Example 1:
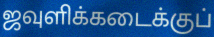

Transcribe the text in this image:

ஜவுளிக்கடைக்குப்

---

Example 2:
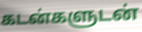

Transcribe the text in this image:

கடன்களுடன்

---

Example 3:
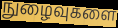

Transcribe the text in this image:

நுழைவுகளை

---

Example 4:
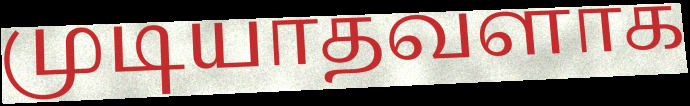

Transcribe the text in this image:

முடியாதவளாக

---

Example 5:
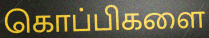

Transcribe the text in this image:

கொப்பிகளை